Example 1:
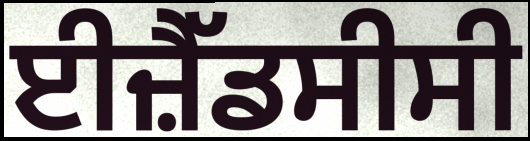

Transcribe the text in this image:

ਈਜ਼ੈੱਡਸੀਸੀ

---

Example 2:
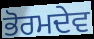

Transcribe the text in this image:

ਭੋਰਮਦੇਵ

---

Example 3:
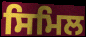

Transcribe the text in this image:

ਸਿਮਿਲ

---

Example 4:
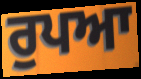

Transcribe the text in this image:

ਰੁਪਆ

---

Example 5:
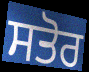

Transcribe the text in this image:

ਸਤੋਰ